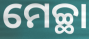
ମେଚ୍ଛା